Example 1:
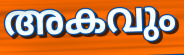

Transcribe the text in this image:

അകവും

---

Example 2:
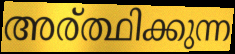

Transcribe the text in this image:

അര്ത്ഥിക്കുന്ന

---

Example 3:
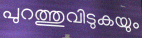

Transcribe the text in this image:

പുറത്തുവിടുകയും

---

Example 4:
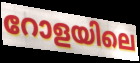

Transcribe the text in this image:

റോളയിലെ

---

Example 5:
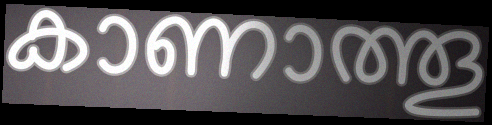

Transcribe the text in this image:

കാണാത്തൂ